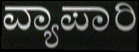
ವ್ಯಾಪಾರಿ